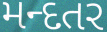
મન્દતર